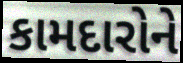
કામદારોને